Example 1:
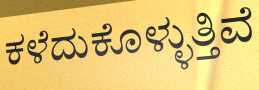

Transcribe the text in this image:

ಕಳೆದುಕೊಳ್ಳುತ್ತಿವೆ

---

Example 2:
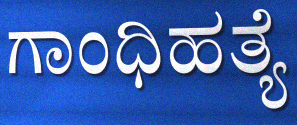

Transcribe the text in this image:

ಗಾಂಧಿಹತ್ಯೆ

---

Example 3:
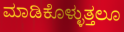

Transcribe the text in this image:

ಮಾಡಿಕೊಳ್ಳುತ್ತಲೂ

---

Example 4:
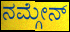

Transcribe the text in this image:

ನಮ್ಗೇನ್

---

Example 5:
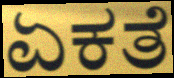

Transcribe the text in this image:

ಏಕತೆ